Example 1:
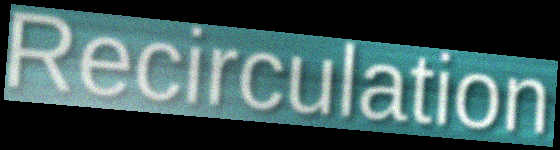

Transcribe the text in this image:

Recirculation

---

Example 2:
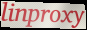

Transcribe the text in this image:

linproxy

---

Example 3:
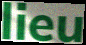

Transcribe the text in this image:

lieu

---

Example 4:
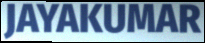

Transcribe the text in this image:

JAYAKUMAR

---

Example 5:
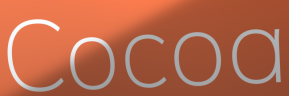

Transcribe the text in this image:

Cocoa